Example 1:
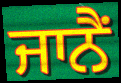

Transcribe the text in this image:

ਜਾਨੈਂ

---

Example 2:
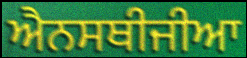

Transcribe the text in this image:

ਐਨਸਥੀਜੀਆ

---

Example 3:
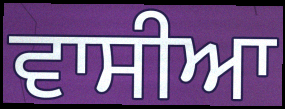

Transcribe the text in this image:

ਵਾਸੀਆ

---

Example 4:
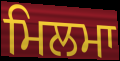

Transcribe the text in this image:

ਮਿਲਮਾ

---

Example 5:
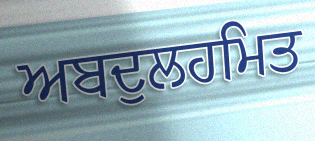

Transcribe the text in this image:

ਅਬਦੁਲਹਮਿਤ